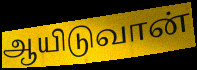
ஆயிடுவான்